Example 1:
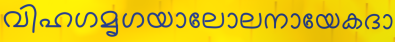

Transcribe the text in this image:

വിഹഗമൃഗയാലോലനായേകദാ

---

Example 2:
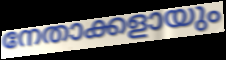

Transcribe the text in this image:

നേതാക്കളായും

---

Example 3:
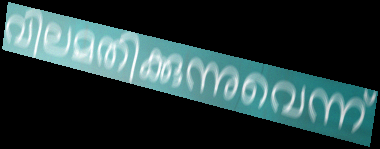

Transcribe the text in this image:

വിലമതിക്കുന്നുവെന്ന്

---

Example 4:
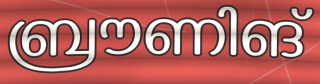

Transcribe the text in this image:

ബ്രൗണിങ്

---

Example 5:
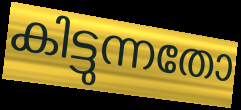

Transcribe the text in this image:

കിട്ടുന്നതോ